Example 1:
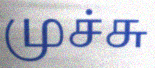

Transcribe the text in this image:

முச்சு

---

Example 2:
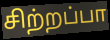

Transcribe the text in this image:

சிற்றப்பா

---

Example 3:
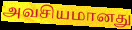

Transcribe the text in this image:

அவசியமானது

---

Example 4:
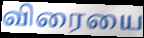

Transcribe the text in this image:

விரையை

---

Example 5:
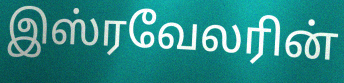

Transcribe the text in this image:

இஸ்ரவேலரின்